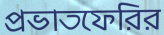
প্রভাতফেরির